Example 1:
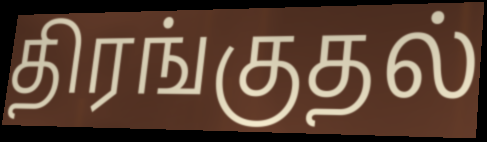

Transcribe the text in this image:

திரங்குதல்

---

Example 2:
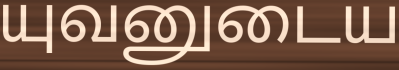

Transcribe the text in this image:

யுவனுடைய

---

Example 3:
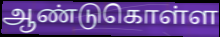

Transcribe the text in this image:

ஆண்டுகொள்ள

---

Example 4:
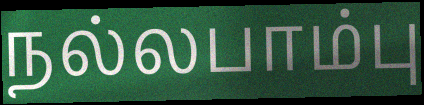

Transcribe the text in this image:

நல்லபாம்பு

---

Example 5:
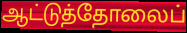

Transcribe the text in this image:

ஆட்டுத்தோலைப்